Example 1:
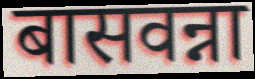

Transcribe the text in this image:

बासवन्ना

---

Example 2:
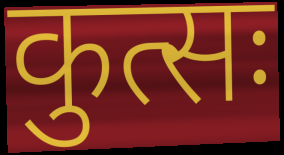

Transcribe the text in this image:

कुत्सः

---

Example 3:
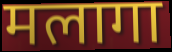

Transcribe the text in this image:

मलागा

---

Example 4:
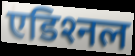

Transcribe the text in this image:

एडिश्नल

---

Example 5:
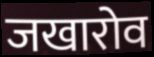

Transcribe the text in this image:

जखारोव